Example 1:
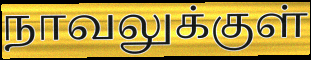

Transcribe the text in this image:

நாவலுக்குள்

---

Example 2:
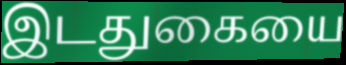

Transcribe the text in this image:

இடதுகையை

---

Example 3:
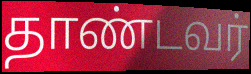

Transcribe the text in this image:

தாண்டவர்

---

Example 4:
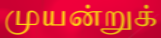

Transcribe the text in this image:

முயன்றுக்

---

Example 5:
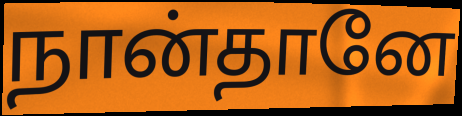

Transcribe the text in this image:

நான்தானே